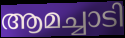
ആമച്ചാടി